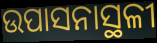
ଉପାସନାସ୍ଥଳୀ